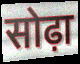
सोढ़ा